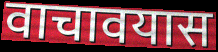
वाचावयास